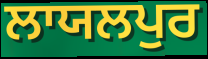
ਲਾਯਲਪੁਰ